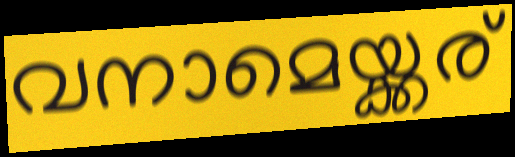
വനാമെയ്ക്കര്